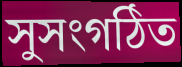
সুসংগঠিত